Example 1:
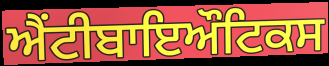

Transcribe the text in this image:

ਐਂਟੀਬਾਇਔਟਿਕਸ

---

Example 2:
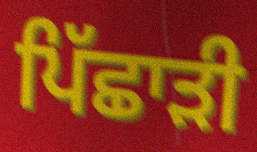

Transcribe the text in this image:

ਪਿੱਛਾੜੀ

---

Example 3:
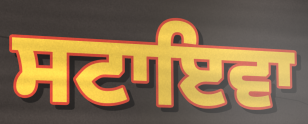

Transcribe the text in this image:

ਸਟਾਇਵਾ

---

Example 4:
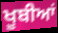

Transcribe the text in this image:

ਖੂਬੀਆਂ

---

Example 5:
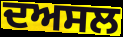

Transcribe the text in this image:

ਦਅਸਲ